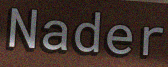
Nader